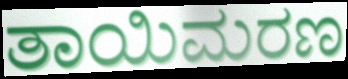
ತಾಯಿಮರಣ